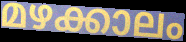
മഴക്കാലം